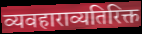
व्यवहाराव्यतिरिक्त